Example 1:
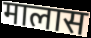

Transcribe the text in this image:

मालास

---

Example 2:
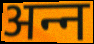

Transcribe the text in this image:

अन्न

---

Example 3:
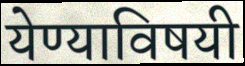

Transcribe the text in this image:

येण्याविषयी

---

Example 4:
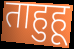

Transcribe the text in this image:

ताहुहू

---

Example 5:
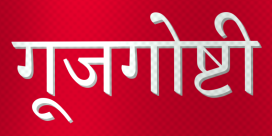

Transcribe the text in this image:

गूजगोष्टी